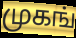
முகங்